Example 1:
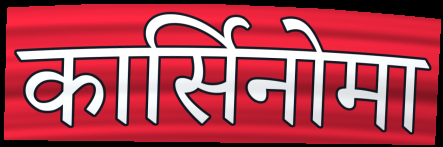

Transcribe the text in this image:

कार्सिनोमा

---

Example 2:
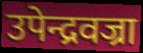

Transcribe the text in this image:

उपेन्द्रवज्रा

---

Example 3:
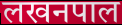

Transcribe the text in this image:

लखनपाल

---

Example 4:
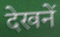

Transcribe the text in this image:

देखनें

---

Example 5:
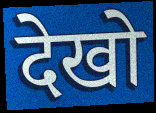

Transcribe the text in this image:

देखो